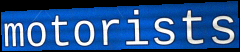
motorists